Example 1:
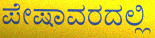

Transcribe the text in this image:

ಪೇಷಾವರದಲ್ಲಿ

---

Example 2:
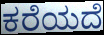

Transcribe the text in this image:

ಕರೆಯದೆ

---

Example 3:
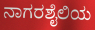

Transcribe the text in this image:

ನಾಗರಶೈಲಿಯ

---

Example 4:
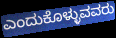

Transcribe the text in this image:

ಎಂದುಕೊಳ್ಳುವವರು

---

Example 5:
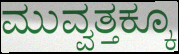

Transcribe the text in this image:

ಮುವ್ವತ್ತಕ್ಕೂ